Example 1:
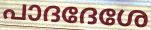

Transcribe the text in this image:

പാദദേശേ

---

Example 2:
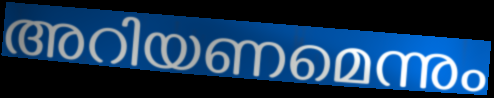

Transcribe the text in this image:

അറിയണമെന്നും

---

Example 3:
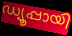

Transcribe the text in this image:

ഡ്യൂപ്പായി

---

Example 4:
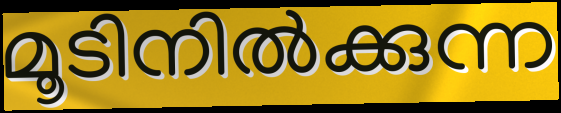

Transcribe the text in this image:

മൂടിനിൽക്കുന്ന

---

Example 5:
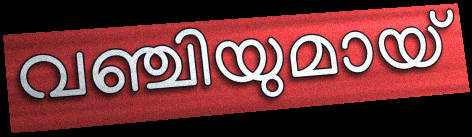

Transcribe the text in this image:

വഞ്ചിയുമായ്